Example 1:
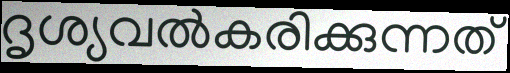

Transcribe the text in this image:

ദൃശ്യവൽകരിക്കുന്നത്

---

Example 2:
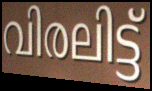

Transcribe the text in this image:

വിരലിട്ട്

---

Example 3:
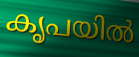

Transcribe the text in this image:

കൃപയിൽ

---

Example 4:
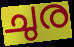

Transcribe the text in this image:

ചുര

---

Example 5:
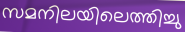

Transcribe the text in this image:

സമനിലയിലെത്തിച്ചു